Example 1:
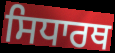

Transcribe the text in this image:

ਸਿਧਾਰਥ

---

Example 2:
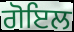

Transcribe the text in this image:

ਗੋਇਲ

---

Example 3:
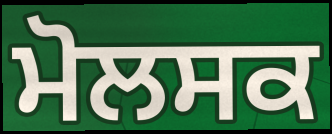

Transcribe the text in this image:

ਮੋਲਸਕ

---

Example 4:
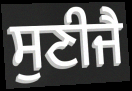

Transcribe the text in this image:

ਸੁਣੀਜੈ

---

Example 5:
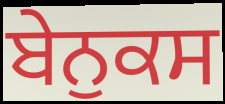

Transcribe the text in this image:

ਬੇਨੁਕਸ